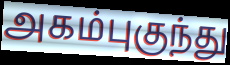
அகம்புகுந்து